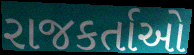
રાજકર્તાઓ